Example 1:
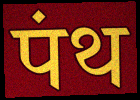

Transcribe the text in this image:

पंथ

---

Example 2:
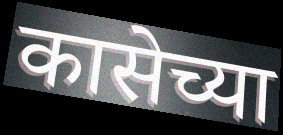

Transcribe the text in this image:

कासेच्या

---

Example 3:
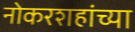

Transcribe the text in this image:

नोकरशहांच्या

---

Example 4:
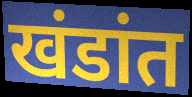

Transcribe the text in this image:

खंडांत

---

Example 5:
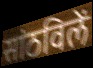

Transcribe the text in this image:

सांठविलें